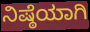
ನಿಷ್ಠೆಯಾಗಿ